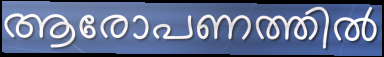
ആരോപണത്തിൽ